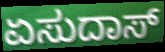
ಏಸುದಾಸ್